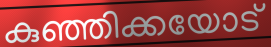
കുഞ്ഞിക്കയോട്